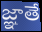
జ్ఞాతే